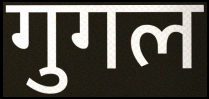
गुगल